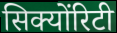
सिक्योंरिटी